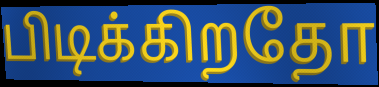
பிடிக்கிறதோ